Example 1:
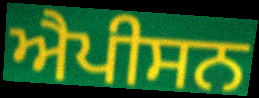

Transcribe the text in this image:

ਐਪੀਸਨ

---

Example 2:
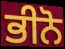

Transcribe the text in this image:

ਭੀਨੋ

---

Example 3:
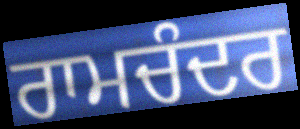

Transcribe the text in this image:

ਰਾਮਚੰਦਰ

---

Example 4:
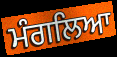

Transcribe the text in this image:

ਮੰਗਲਿਆ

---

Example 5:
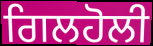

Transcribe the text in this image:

ਗਿਲਹੋਲੀ